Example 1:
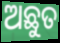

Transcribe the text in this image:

ଅଛୁତ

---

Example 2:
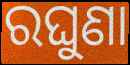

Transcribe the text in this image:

ରଘୁଣା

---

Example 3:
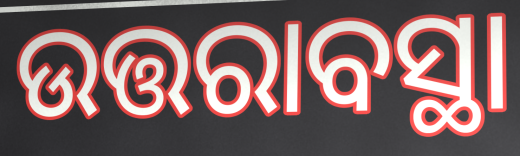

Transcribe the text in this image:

ଉତ୍ତରାବସ୍ଥା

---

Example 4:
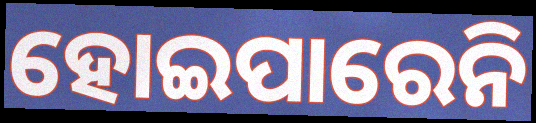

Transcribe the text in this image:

ହୋଇପାରେନି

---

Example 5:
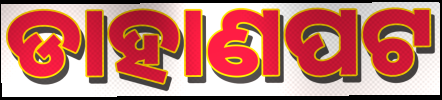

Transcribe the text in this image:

ଡାହାଣପଟ